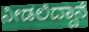
ನೀಡಲಿದ್ದಾನೆ